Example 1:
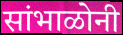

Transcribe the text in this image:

सांभाळोनी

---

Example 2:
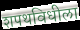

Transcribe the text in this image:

शपथविधीला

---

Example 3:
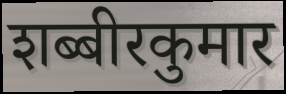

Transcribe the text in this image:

शब्बीरकुमार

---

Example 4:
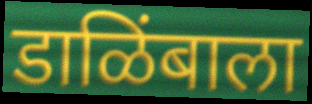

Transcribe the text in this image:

डाळिंबाला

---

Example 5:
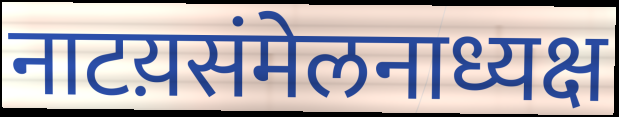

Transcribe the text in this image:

नाटय़संमेलनाध्यक्ष